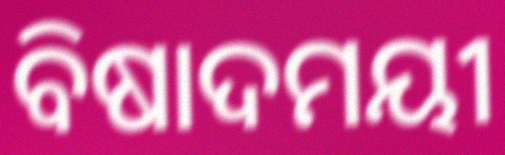
ବିଷାଦମୟୀ